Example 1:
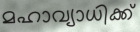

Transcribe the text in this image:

മഹാവ്യാധിക്ക്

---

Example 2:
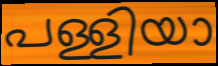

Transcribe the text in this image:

പള്ളിയാ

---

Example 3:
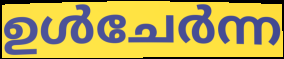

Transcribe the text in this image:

ഉൾചേർന്ന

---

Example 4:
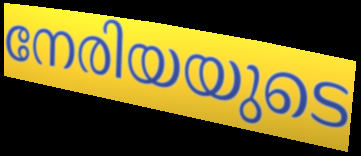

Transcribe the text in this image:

നേരിയയുടെ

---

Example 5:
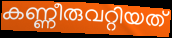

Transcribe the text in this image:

കണ്ണീരുവറ്റിയത്